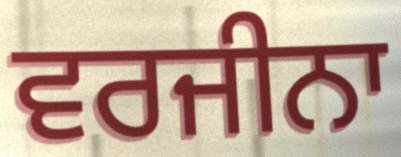
ਵਰਜੀਨਾ